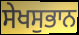
ਸੇਖਸੁਭਾਨ